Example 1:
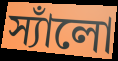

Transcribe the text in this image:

স্যাঁলো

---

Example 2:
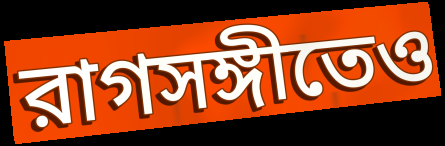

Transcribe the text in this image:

রাগসঙ্গীতেও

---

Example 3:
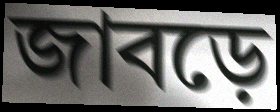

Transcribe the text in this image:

জাবড়ে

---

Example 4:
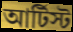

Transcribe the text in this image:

আর্টিস্ট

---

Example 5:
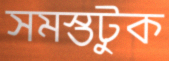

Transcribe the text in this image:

সমস্তটুক